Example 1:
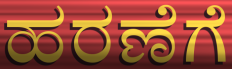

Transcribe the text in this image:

ಹರಣೆಗೆ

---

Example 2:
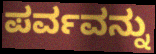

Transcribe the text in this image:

ಪರ್ವವನ್ನು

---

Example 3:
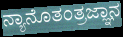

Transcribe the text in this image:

ನ್ಯಾನೊತಂತ್ರಜ್ಞಾನ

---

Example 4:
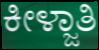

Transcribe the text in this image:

ಕೀಳ್ಜಾತಿ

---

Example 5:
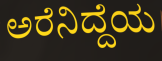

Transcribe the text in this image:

ಅರೆನಿದ್ದೆಯ